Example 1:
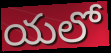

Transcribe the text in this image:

యలో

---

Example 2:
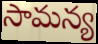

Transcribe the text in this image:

సామన్య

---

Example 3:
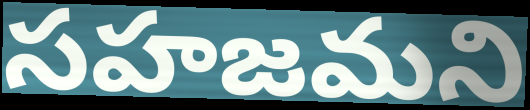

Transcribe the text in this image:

సహజమని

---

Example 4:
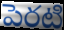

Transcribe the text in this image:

పెరటి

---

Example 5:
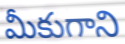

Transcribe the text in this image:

మీకుగాని